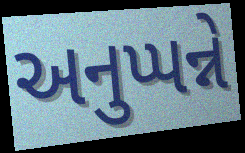
અનુપ્પન્ને